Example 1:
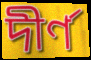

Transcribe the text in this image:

দীর্ণ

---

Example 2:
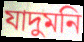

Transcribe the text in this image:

যাদুমনি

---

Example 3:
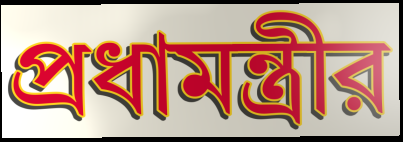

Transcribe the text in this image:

প্রধামন্ত্রীর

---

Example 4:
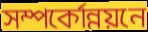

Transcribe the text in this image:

সম্পর্কোন্নয়নে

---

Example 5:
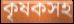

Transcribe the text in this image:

কৃষকসহ